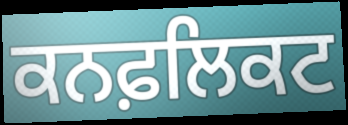
ਕਨਫ਼ਲਿਕਟ